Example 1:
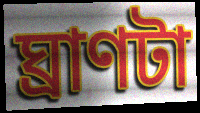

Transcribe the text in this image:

ঘ্রাণটা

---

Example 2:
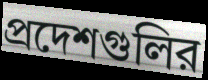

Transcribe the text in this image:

প্রদেশগুলির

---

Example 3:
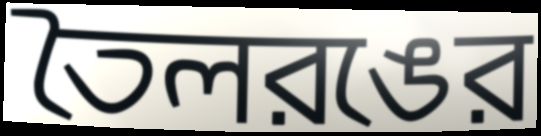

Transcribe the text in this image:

তৈলরঙের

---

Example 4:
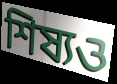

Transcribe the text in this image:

শিষ্যও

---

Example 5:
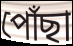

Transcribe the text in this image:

পোঁছা